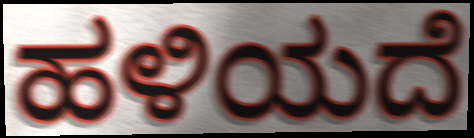
ಹಳಿಯದೆ